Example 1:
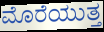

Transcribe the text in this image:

ಮೊರೆಯುತ್ತ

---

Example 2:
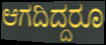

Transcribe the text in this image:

ಆಗದಿದ್ದರೂ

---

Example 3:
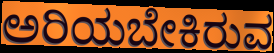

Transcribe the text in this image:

ಅರಿಯಬೇಕಿರುವ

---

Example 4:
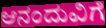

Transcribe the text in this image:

ಆನಂದುವಿಗೆ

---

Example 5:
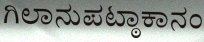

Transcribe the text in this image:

ಗಿಲಾನುಪಟ್ಠಾಕಾನಂ